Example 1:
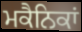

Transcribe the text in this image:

ਮਕੈਨਿਕਾਂ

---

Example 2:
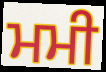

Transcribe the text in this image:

ਮਮੀ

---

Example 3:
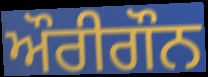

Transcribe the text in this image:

ਔਰੀਗੌਨ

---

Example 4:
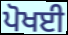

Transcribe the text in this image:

ਪੋਖਈ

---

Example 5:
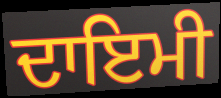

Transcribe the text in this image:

ਦਾਇਮੀ